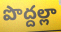
పొద్దల్లా